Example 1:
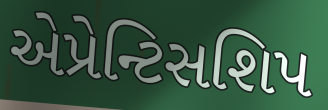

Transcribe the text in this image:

એપ્રેન્ટિસશિપ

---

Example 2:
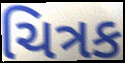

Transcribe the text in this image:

ચિત્રક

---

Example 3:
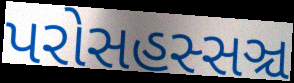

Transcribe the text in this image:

પરોસહસ્સઞ્ચ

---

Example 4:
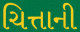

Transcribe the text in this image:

ચિત્તાની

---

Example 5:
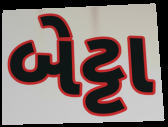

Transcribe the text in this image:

બેટ્ટા